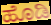
ಹೊಡಿ